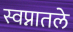
स्वप्नातले